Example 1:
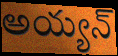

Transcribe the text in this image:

అయ్యన్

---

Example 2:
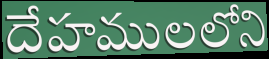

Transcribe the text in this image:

దేహములలోని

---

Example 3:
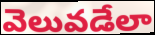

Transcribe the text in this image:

వెలువడేలా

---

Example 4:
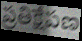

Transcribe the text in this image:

ప్రతిక్షేపణ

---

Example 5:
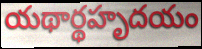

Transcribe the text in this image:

యథార్థహృదయం